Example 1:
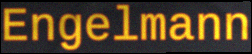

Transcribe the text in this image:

Engelmann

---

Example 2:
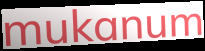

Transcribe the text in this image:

mukanum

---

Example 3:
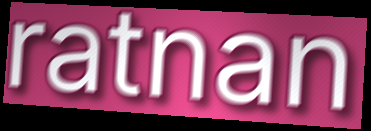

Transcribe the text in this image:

ratnan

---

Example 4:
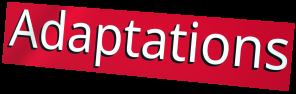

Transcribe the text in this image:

Adaptations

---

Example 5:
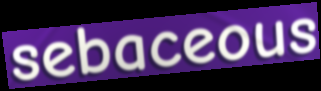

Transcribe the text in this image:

sebaceous